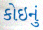
કોઇનું